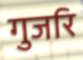
गुजरि